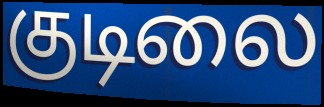
குடிலை